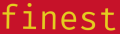
finest